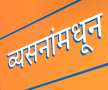
व्यसनांमधून